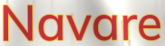
Navare